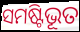
ସମଷ୍ଟିଭୂତ